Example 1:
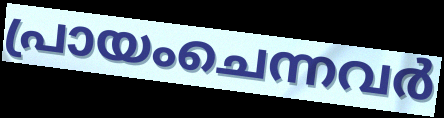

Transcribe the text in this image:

പ്രായംചെന്നവർ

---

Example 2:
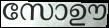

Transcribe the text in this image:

സോഊ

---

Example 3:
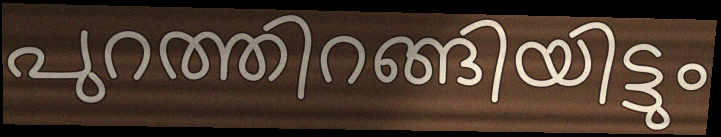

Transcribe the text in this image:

പുറത്തിറങ്ങിയിട്ടും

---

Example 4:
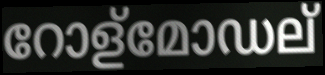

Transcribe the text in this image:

റോള്മോഡല്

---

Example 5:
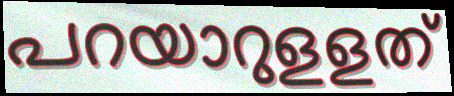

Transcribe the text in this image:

പറയാറുളളത്